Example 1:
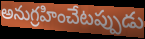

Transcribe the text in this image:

అనుగ్రహించేటప్పుడు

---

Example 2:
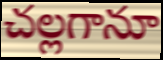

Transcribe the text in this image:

చల్లగానూ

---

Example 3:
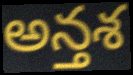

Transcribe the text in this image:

అన్తశ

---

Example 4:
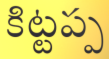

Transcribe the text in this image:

కిట్టప్ప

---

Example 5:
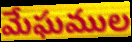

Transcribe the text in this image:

మేఘముల